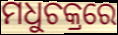
ମଧୁଚକ୍ରରେ